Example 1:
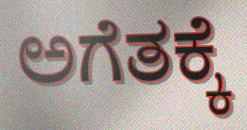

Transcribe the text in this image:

ಅಗೆತಕ್ಕೆ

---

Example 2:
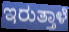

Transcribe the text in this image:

ಇರುತ್ತಾಳೆ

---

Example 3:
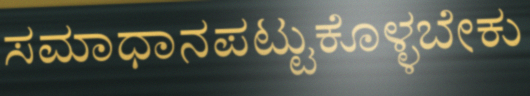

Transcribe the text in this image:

ಸಮಾಧಾನಪಟ್ಟುಕೊಳ್ಳಬೇಕು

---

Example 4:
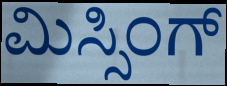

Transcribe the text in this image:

ಮಿಸ್ಸಿಂಗ್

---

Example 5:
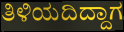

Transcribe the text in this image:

ತಿಳಿಯದಿದ್ದಾಗ